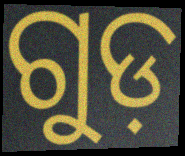
ଗୁଡ଼